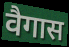
वैगास